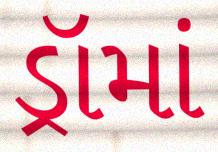
ડ્રૉમાં